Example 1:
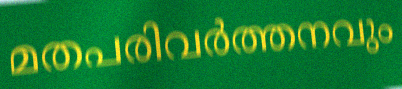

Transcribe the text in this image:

മതപരിവർത്തനവും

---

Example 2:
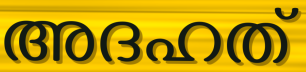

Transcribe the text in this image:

അദഹത്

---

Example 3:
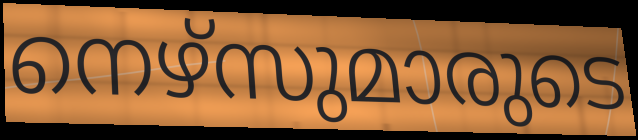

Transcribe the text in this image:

നെഴ്സുമാരുടെ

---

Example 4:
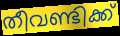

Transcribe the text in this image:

തീവണ്ടിക്ക്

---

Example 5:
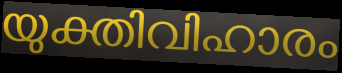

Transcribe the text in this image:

യുക്തിവിഹാരം